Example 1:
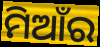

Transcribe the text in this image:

ମିଆଁର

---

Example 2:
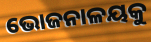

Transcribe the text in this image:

ଭୋଜନାଳୟକୁ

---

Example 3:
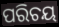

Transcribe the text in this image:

ପରିଚୟ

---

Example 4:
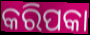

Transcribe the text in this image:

କରିପକା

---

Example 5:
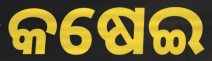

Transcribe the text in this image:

କଷେଇ